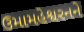
ઉમામહેશ્વરનને